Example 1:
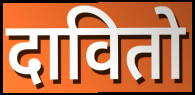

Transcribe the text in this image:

दावितो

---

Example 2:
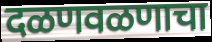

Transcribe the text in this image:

दळणवळणाचा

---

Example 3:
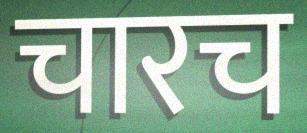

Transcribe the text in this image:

चारच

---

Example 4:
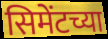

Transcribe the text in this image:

सिमेंटच्या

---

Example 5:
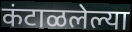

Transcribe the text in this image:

कंटाळलेल्या